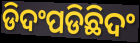
ଡିଦଂପଡିଛିଦଂ